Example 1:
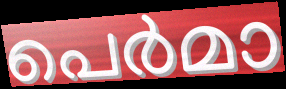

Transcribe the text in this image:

പെർമാ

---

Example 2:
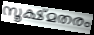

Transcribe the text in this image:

സൂക്ഷ്മതരം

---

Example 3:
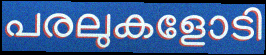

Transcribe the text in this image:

പരലുകളോടി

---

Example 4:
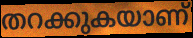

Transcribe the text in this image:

തറക്കുകയാണ്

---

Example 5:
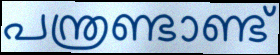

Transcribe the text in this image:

പന്ത്രണ്ടാണ്ട്